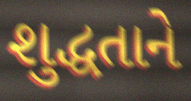
શુદ્ધતાને